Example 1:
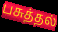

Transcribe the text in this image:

பசுத்தல்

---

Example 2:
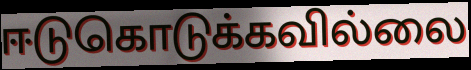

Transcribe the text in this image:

ஈடுகொடுக்கவில்லை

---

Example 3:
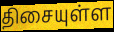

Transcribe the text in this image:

திசையுள்ள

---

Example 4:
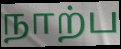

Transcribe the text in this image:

நாற்ப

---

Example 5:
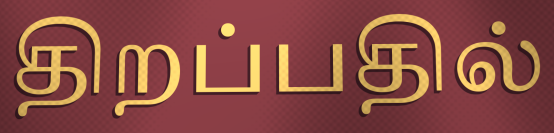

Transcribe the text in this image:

திறப்பதில்